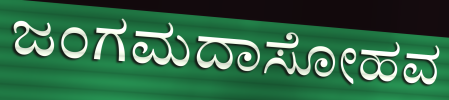
ಜಂಗಮದಾಸೋಹವ